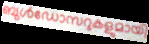
ബുൾഡോസറുകളുമായി